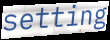
setting